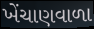
ખેંચાણવાળા